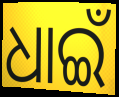
ଧାଇଁ